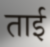
ताई